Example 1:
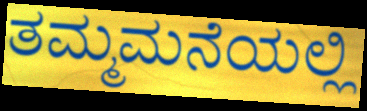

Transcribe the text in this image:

ತಮ್ಮಮನೆಯಲ್ಲಿ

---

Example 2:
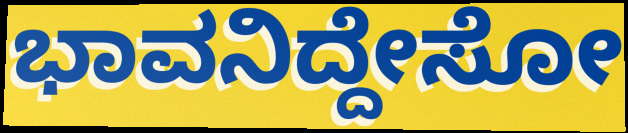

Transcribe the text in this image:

ಭಾವನಿದ್ದೇಸೋ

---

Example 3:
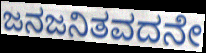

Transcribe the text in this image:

ಜನಜನಿತವದನೇ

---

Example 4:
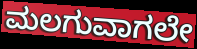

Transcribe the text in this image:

ಮಲಗುವಾಗಲೇ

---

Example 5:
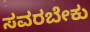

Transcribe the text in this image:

ಸವರಬೇಕು